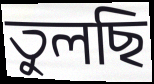
তুলছি